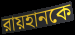
রায়হানকে